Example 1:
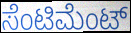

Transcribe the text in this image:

ಸೆಂಟಿಮೆಂಟ್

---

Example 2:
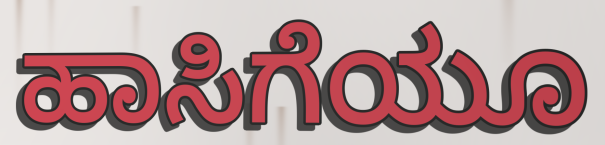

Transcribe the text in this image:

ಹಾಸಿಗೆಯೂ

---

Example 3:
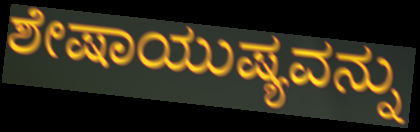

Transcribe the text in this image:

ಶೇಷಾಯುಷ್ಯವನ್ನು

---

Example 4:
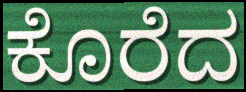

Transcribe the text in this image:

ಕೊರೆದ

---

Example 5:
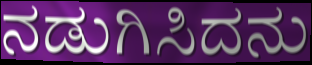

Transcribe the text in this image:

ನಡುಗಿಸಿದನು